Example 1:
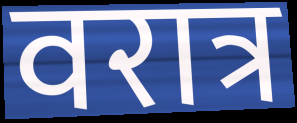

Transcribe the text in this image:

वरात्र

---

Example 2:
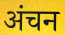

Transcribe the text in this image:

अंचन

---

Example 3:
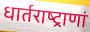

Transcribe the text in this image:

धार्तराष्ट्राणां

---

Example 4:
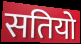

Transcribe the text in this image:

सतियो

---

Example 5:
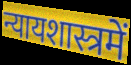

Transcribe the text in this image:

न्यायशास्त्रमें